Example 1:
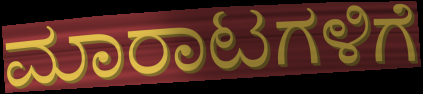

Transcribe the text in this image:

ಮಾರಾಟಗಳಿಗೆ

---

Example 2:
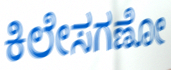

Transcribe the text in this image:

ಕಿಲೇಸಗಣೋ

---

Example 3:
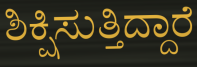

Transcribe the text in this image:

ಶಿಕ್ಷಿಸುತ್ತಿದ್ದಾರೆ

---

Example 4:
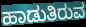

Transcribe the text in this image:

ಹಾಡುತಿರುವ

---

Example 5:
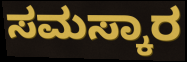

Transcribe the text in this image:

ಸಮಸ್ಕಾರ